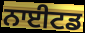
ਨਾਈਟਡ